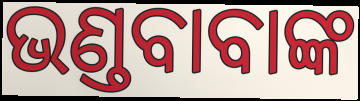
ଭଣ୍ଡବାବାଙ୍କ